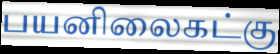
பயனிலைகட்கு